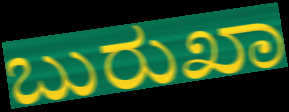
ಬುರುಖಾ